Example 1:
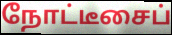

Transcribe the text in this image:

நோட்டீசைப்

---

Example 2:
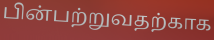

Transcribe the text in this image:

பின்பற்றுவதற்காக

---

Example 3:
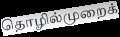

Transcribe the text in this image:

தொழில்முறைக்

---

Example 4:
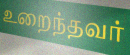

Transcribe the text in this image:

உறைந்தவர்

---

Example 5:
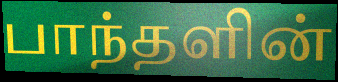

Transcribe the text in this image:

பாந்தளின்